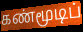
கண்மூடிப்